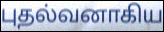
புதல்வனாகிய